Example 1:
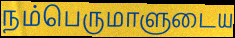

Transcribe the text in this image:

நம்பெருமாளுடைய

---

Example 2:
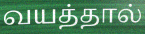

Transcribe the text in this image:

வயத்தால்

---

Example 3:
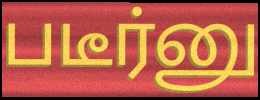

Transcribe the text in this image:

படீர்னு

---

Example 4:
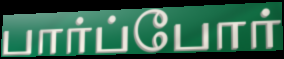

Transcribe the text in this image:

பார்ப்போர்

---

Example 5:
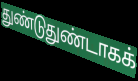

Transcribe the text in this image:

துண்டுதுண்டாகக்